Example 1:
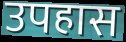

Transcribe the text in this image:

उपहास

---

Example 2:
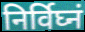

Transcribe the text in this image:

निर्विघ्नं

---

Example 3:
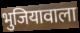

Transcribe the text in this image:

भुजियावाला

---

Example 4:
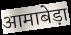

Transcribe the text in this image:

आमाबेड़ा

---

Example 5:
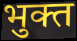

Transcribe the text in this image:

भुक्त